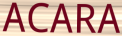
ACARA